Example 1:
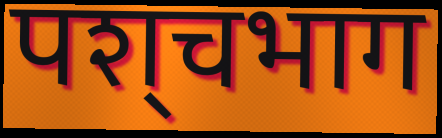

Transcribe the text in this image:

पश्चभाग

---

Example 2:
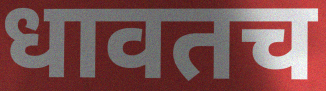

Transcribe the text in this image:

धावतच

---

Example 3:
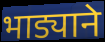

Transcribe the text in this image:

भाड्याने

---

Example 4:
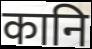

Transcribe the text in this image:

कानि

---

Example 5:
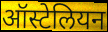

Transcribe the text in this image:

ऑस्टेलियन